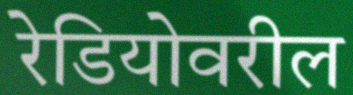
रेडियोवरील